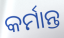
କର୍ମାନ୍ତ